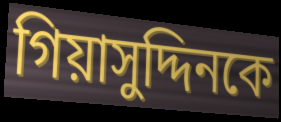
গিয়াসুদ্দিনকে